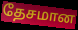
தேசமான